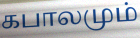
கபாலமும்